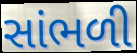
સાંભળી